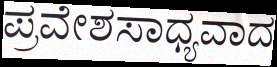
ಪ್ರವೇಶಸಾಧ್ಯವಾದ